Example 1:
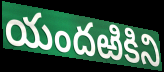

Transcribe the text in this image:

యందఱికిని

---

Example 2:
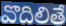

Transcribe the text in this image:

వొదిలితే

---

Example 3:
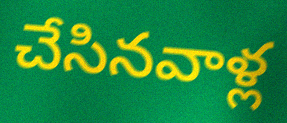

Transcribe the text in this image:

చేసినవాళ్ల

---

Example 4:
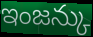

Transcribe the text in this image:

ఇంజన్కు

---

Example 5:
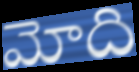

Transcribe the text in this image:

మోది